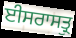
ਈਸਰਾਸਤ੍ਰੁ